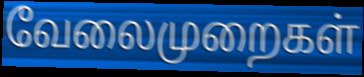
வேலைமுறைகள்